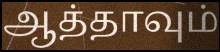
ஆத்தாவும்